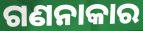
ଗଣନାକାର